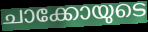
ചാക്കോയുടെ